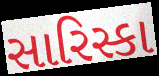
સારિસ્કા